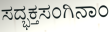
ಸದ್ಭಕ್ತಸಂಗಿನಾಂ